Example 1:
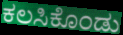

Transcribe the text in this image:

ಕಲಸಿಕೊಂಡು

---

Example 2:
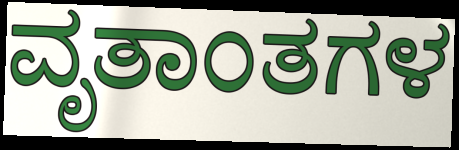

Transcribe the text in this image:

ವೃತಾಂತಗಳ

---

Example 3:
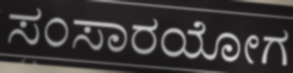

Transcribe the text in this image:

ಸಂಸಾರಯೋಗ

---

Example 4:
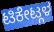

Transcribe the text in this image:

ಟಿಕೇಟ್ಗಳ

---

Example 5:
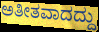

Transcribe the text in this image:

ಅತೀತವಾದದ್ದು